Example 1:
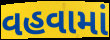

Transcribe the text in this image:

વહવામાં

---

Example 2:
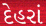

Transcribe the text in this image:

દેહરાં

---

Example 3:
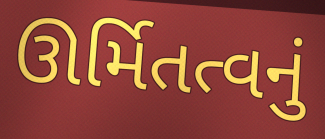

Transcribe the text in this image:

ઊર્મિતત્વનું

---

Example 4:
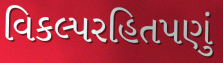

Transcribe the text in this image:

વિકલ્પરહિતપણું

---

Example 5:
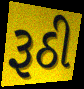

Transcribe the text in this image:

રૂઠી